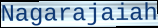
Nagarajaiah